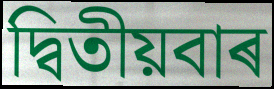
দ্বিতীয়বাৰ